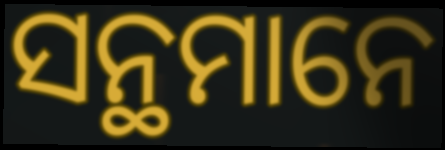
ସନ୍ଥମାନେ